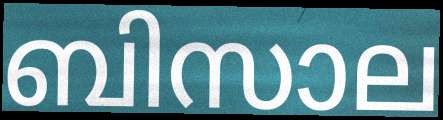
ബിസാല